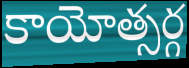
కాయోత్సర్గ